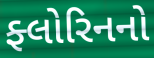
ફ્લોરિનનો